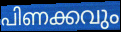
പിണക്കവും